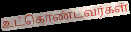
உட்கொண்டவர்கள்